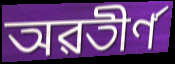
অৱতীৰ্ণ